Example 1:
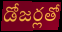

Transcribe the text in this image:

డోజర్లతో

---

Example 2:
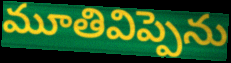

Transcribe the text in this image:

మూతివిప్పెను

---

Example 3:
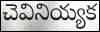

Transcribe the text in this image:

చెవినియ్యక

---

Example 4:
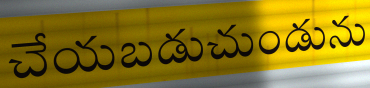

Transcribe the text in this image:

చేయబడుచుండును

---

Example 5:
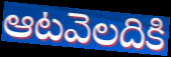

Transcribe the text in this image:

ఆటవెలదికి